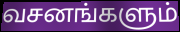
வசனங்களும்